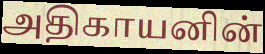
அதிகாயனின்